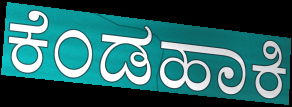
ಕೆಂಡಹಾಕಿ